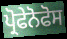
ਪ੍ਰੋਫੇਨੋਫੋਸ